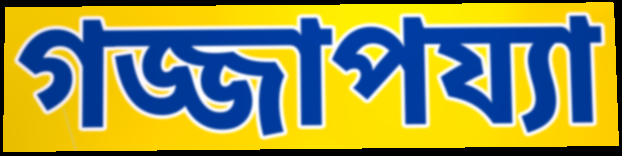
গজ্জাপয্যা